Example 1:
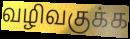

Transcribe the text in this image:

வழிவகுக்க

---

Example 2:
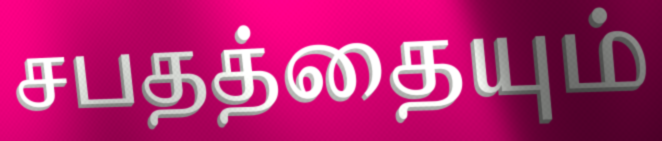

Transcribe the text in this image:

சபதத்தையும்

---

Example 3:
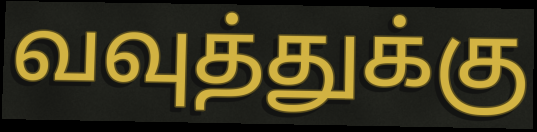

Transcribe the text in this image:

வவுத்துக்கு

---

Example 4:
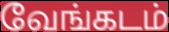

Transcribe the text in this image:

வேங்கடம்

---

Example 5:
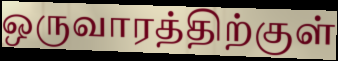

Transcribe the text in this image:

ஒருவாரத்திற்குள்